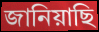
জানিয়াছি